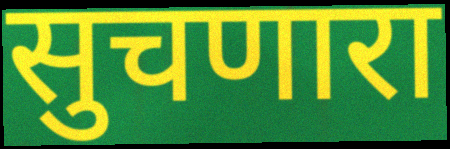
सुचणारा